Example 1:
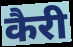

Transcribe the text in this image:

कैरी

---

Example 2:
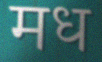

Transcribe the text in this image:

मध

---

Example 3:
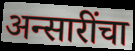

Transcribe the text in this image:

अन्सारींचा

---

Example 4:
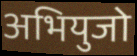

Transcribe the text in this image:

अभियुजो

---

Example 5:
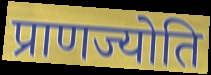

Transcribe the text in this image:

प्राणज्योति